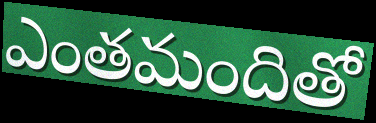
ఎంతమందితో